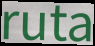
ruta